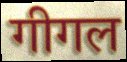
गीगल